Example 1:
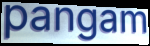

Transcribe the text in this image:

pangam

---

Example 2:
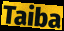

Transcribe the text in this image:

Taiba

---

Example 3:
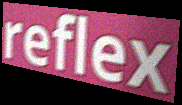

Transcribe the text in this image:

reflex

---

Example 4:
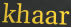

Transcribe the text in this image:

khaar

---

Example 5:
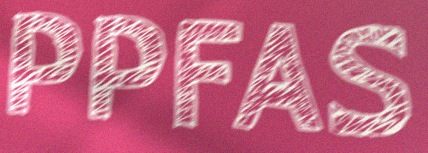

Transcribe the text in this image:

PPFAS